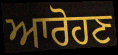
ਆਰੋਹਣ